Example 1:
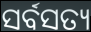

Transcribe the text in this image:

ସର୍ବସତ୍ୟ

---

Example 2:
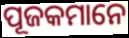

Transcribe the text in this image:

ପୂଜକମାନେ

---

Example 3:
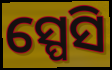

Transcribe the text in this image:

ସ୍ପେସି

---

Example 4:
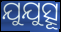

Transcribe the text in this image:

ଯୁଯୁତ୍ସୂ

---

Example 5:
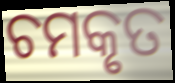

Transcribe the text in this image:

ଚମକୃତ